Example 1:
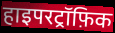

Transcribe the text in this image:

हाइपरट्रॉफ़िक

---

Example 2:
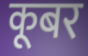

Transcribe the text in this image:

कूबर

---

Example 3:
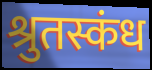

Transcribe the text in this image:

श्रुतस्कंध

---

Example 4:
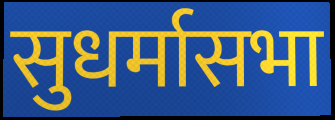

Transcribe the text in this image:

सुधर्मासभा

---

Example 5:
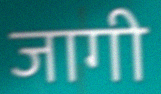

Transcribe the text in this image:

जागी